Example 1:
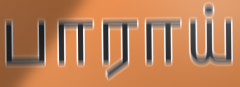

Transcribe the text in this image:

பாராய்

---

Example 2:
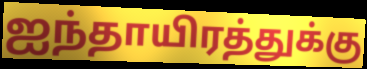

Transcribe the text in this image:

ஐந்தாயிரத்துக்கு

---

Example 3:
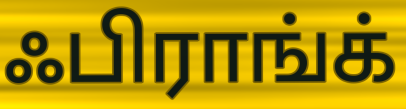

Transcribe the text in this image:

ஃபிராங்க்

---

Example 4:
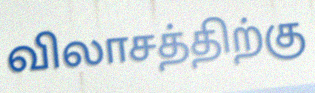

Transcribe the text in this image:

விலாசத்திற்கு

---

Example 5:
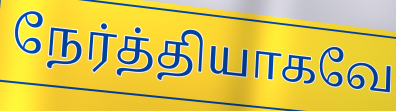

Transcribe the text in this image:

நேர்த்தியாகவே